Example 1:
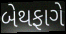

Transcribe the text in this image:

બેથફાગે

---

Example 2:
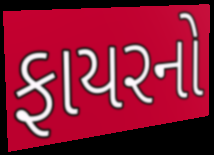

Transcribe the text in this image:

ફાયરનો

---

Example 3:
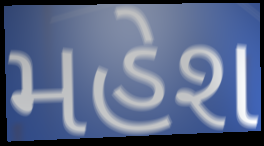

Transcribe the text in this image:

મહેશ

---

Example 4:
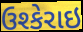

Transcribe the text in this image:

ઉશ્કેરાઇ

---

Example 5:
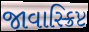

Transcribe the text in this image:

જાવાસ્ક્રિપ્ટ